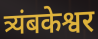
त्र्यंबकेश्वर